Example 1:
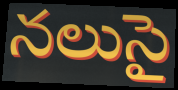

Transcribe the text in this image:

నలుసై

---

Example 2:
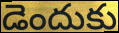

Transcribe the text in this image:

డెందుకు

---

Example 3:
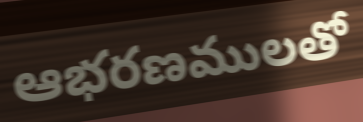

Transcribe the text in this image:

ఆభరణములతో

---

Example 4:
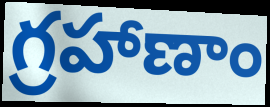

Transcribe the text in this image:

గ్రహాణాం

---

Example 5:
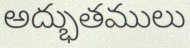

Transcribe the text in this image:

అద్భుతములు